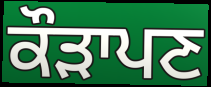
ਕੌੜਾਪਣ